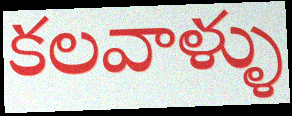
కలవాళ్ళు